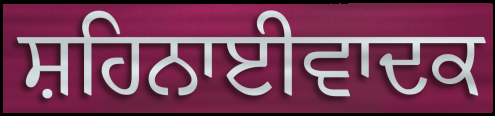
ਸ਼ਹਿਨਾਈਵਾਦਕ